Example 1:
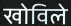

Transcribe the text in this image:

खोविले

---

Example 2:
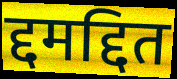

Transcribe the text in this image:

द्दमद्दित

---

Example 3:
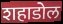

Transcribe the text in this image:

शहाडोल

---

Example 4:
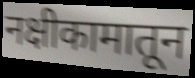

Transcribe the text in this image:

नक्षीकामातून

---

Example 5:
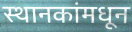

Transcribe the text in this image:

स्थानकांमधून